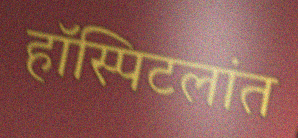
हॉस्पिटलांत